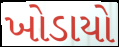
ખોડાયો